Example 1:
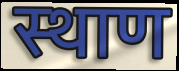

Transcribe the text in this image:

स्थाण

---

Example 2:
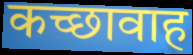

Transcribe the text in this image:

कच्छावाह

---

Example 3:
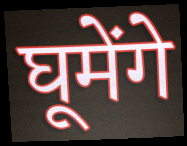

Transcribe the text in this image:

घूमेंगे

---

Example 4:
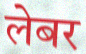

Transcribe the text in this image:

लेबर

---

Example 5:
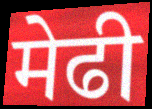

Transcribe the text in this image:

मेढी